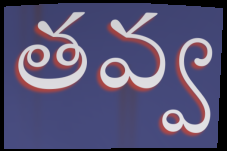
తవ్వ